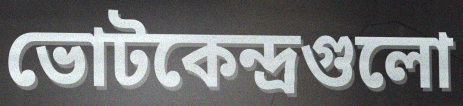
ভোটকেন্দ্রগুলো